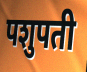
पशुपती